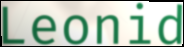
Leonid